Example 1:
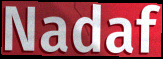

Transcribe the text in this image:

Nadaf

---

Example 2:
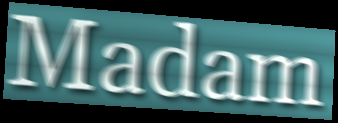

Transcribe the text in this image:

Madam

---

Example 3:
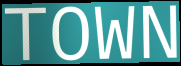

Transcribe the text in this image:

TOWN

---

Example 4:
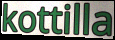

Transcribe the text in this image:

kottilla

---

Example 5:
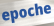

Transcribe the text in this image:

epoche